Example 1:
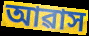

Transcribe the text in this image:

আৱাস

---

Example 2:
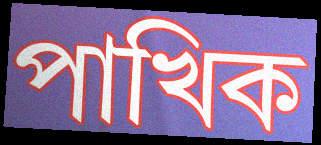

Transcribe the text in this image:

পাখিক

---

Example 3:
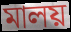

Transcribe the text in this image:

মালয়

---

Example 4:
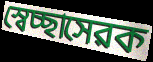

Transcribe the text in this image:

স্বেচ্ছাসেৱক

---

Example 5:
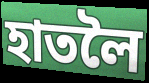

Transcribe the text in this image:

হাতলৈ